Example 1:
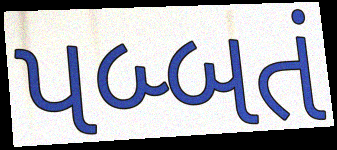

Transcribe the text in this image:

પબ્બતં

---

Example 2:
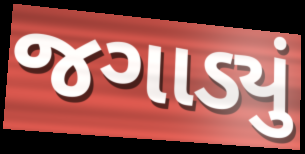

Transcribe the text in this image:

જગાડ્યું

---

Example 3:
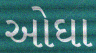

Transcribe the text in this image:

ઓઘા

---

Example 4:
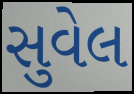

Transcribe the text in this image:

સુવેલ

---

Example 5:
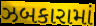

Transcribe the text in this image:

ઝબકારામાં